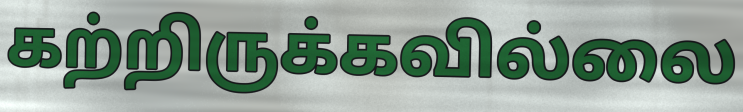
கற்றிருக்கவில்லை